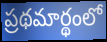
ప్రథమార్థంలో